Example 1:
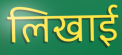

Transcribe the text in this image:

लिखाई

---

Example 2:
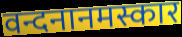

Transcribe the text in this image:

वन्दनानमस्कार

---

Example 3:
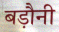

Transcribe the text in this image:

बड़ौनी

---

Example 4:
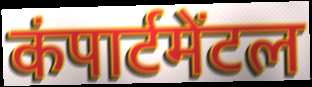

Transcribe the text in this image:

कंपार्टमेंटल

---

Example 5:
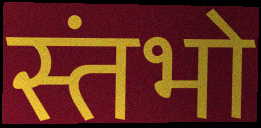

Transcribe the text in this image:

स्तंभो